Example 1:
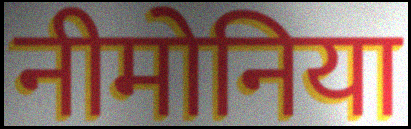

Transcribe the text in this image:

नीमोनिया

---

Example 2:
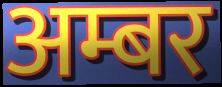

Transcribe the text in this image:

अम्‍बर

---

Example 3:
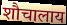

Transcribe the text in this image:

शौचालाय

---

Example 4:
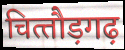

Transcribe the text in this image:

चित्‍तौड़गढ़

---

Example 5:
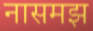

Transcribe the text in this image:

नासमझ